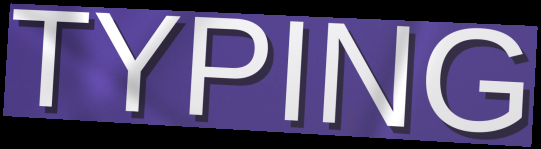
TYPING